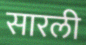
सारली